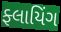
ફ્લાયિંગ